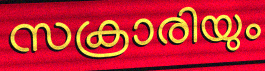
സക്രാരിയും